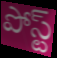
పోస్ట్